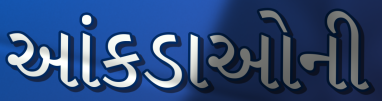
આંકડાઓની